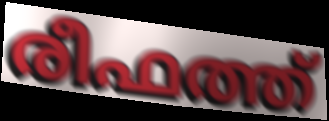
രീഫത്ത്